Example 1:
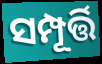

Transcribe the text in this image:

ସମ୍ପୂର୍ତ୍ତି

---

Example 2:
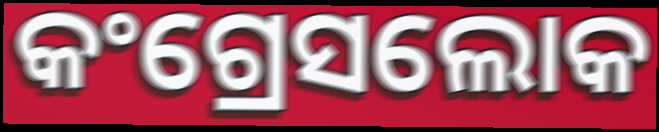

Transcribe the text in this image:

କଂଗ୍ରେସଲୋକ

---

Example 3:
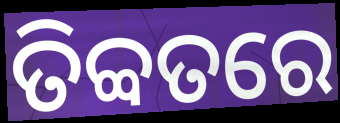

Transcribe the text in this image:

ତିବ୍ବତରେ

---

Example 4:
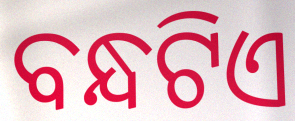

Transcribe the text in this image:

ବନ୍ଧଟିଏ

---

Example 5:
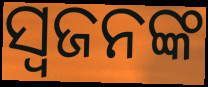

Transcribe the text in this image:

ସ୍ଵଜନଙ୍କ